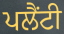
ਪਲੈਂਟੀ